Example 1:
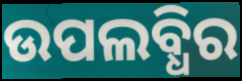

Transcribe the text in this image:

ଉପଲବ୍ଧିର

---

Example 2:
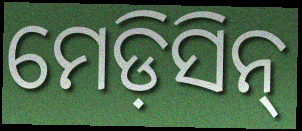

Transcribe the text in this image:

ମେଡ଼ିସିନ୍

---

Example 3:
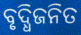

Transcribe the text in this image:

ବୃଦ୍ଧିଜନିତ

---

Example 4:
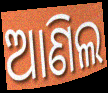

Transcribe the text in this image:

ଆଣିଲ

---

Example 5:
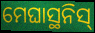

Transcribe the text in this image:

ମେଘାସ୍ଥନିସ୍